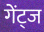
गेंट्ज